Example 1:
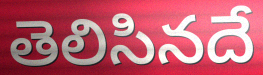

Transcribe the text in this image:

తెలిసినదే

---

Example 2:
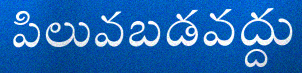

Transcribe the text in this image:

పిలువబడవద్దు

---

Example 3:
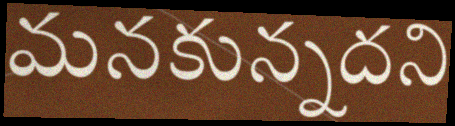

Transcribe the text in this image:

మనకున్నదని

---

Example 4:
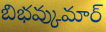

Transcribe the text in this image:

బిభవ్కుమార్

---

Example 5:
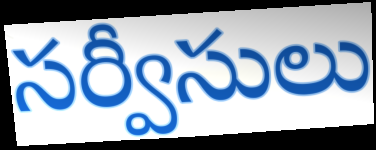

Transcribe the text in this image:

సర్వీసులు